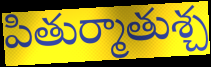
పితుర్మాతుశ్చ